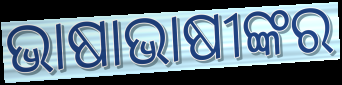
ଭାଷାଭାଷୀଙ୍କର